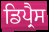
ਡਿਪ੍ਰੈਸ